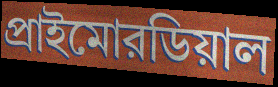
প্রাইমোরডিয়াল